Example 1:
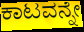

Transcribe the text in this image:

ಕಾಟವನ್ನೇ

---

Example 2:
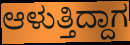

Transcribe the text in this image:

ಆಳುತ್ತಿದ್ದಾಗ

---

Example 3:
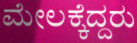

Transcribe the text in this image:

ಮೇಲಕ್ಕೆದ್ದರು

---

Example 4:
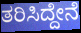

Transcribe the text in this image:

ತರಿಸಿದ್ದೇನೆ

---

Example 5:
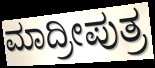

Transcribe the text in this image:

ಮಾದ್ರೀಪುತ್ರ